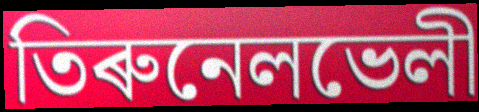
তিৰুনেলভেলী